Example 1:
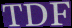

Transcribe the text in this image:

TDF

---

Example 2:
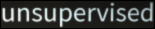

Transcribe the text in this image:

unsupervised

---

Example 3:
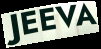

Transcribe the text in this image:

JEEVA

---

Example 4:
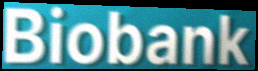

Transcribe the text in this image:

Biobank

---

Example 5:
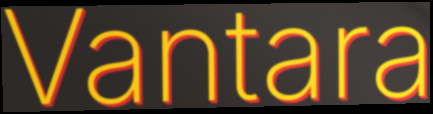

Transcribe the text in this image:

Vantara